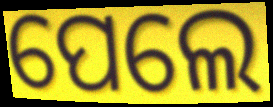
ପେଲେ